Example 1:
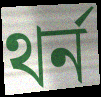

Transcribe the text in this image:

থর্ন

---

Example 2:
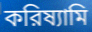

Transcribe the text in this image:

করিষ্যামি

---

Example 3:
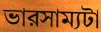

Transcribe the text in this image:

ভারসাম্যটা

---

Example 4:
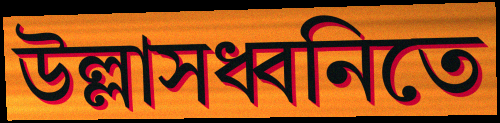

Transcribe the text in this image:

উল্লাসধ্বনিতে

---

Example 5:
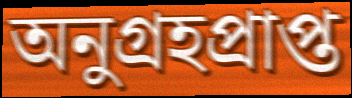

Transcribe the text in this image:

অনুগ্রহপ্রাপ্ত